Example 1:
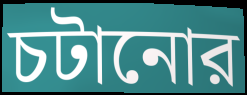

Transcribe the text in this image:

চটানোর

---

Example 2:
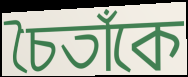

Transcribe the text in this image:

চৈতাঁকে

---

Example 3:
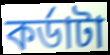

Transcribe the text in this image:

কর্ডাটা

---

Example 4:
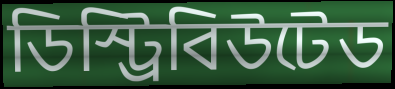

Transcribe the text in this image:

ডিস্ট্রিবিউটেড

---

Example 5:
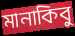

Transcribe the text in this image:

মানাকিবু